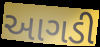
આગડી